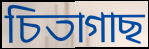
চিতাগাছ